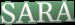
SARA